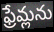
ఫ్రేమ్లను